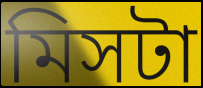
মিসটা